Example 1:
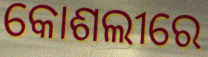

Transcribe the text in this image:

କୋଶଲୀରେ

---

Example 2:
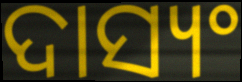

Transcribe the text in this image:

ଦାସ୍ୟଂ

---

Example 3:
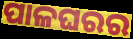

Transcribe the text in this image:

ପାଳଘରର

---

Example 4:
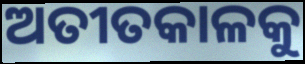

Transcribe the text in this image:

ଅତୀତକାଳକୁ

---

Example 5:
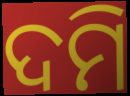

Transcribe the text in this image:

ଦମି